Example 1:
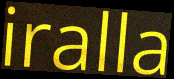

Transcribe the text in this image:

iralla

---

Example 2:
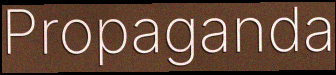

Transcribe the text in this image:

Propaganda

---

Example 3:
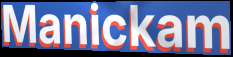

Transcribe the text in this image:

Manickam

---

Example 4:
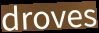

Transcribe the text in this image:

droves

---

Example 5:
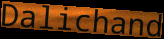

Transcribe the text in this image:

Dalichand